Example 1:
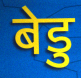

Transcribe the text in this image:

बेडु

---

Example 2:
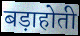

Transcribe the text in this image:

बड़ाहोती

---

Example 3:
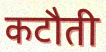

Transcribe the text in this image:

कटौती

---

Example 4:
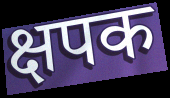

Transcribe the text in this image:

क्षपक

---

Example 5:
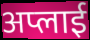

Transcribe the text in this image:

अप्‍लाई